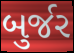
બુર્જર